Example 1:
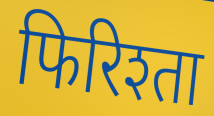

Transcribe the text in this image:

फिरिश्ता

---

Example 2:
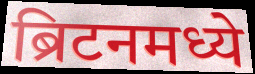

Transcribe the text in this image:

ब्रिटनमध्ये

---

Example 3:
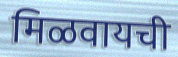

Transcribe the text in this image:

मिळवायची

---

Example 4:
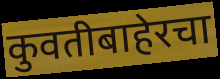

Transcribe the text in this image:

कुवतीबाहेरचा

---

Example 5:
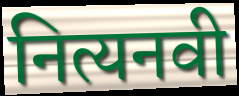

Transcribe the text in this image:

नित्यनवी